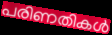
പരിണതികൾ